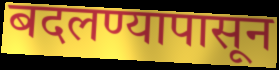
बदलण्यापासून